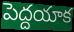
పెద్దయాక